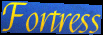
Fortress